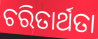
ଚରିତାର୍ଥତା